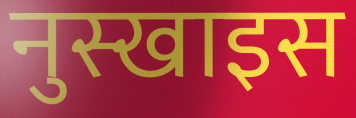
नुस्खाइस